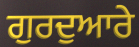
ਗੁਰਦੁਆਰੇ